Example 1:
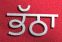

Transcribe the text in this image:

ਭੱਠਾ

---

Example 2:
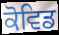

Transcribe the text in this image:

ਕੋਵਿਡ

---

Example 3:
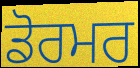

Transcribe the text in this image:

ਡੋਰਮਰ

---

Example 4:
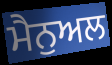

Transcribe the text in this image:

ਮੈਨੁਅਲ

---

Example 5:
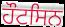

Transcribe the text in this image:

ਹੌਟਸਿਨ